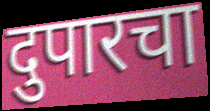
दुपारचा